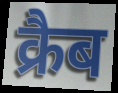
क्रैब